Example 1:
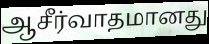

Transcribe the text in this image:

ஆசீர்வாதமானது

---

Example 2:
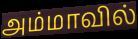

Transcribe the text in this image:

அம்மாவில்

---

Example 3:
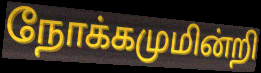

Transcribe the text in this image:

நோக்கமுமின்றி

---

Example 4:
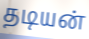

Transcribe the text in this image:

தடியன்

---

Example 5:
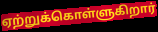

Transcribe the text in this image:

ஏற்றுக்கொள்ளுகிறார்